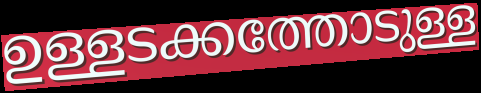
ഉള്ളടക്കത്തോടുള്ള